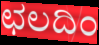
ಛಲದಿಂ